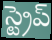
స్ట్రెప్